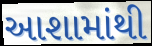
આશામાંથી